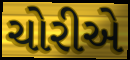
ચોરીએ